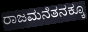
ರಾಜಮನೆತನಕ್ಕೂ